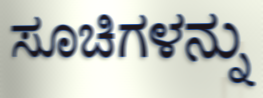
ಸೂಚಿಗಳನ್ನು